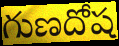
గుణదోష